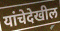
यांचेदेखील